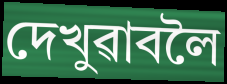
দেখুৱাবলৈ